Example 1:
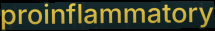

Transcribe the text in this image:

proinflammatory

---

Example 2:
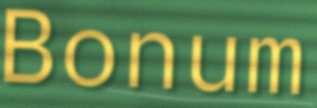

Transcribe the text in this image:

Bonum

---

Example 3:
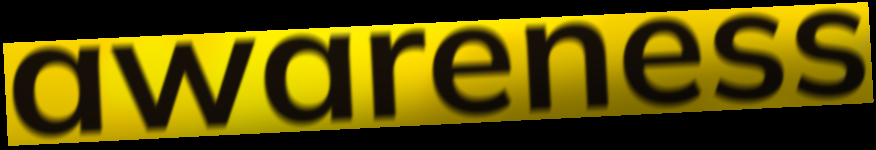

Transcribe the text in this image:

awareness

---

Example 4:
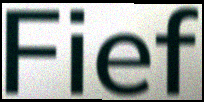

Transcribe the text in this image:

Fief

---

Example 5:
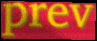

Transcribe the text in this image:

prev